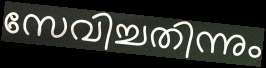
സേവിച്ചതിന്നും